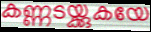
കണ്ണടയ്ക്കുകയേ